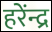
हरेंन्द्र